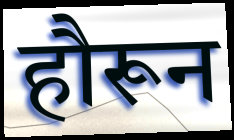
हौरून